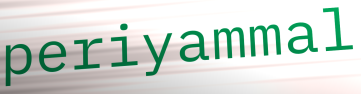
periyammal